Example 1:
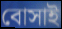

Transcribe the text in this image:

বোসাই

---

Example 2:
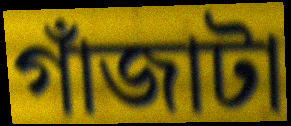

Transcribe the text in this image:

গাঁজাটা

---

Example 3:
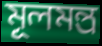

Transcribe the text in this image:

মূলমন্ত্র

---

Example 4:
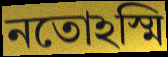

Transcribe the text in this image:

নতোঽস্মি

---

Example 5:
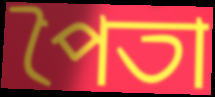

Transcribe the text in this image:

পৈতা